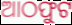
ଆଠଫୁଟ